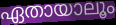
ഏതായാലൂം